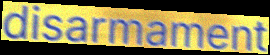
disarmament